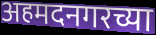
अहमदनगरच्या